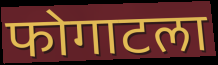
फोगाटला